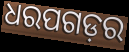
ଧରପଗଡ଼ର